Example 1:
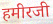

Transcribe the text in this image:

हमीरजी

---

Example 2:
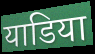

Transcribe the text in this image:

याडिया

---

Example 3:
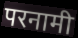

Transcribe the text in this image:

परनामी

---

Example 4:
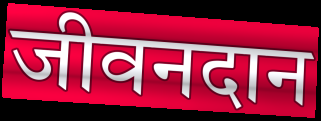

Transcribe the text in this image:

जीवनदान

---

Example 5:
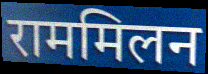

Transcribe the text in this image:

राममिलन